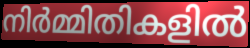
നിർമ്മിതികളിൽ